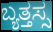
ಬ್ಯತ್ತಸ್ಸ